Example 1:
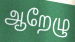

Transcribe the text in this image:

ஆறேழு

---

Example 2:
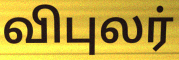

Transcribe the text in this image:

விபுலர்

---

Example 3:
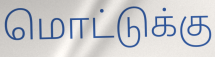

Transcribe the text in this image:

மொட்டுக்கு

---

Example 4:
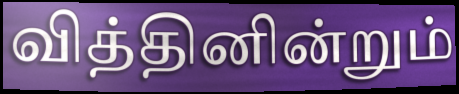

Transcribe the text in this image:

வித்தினின்றும்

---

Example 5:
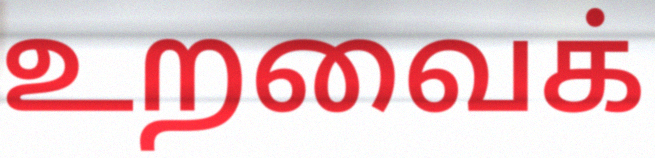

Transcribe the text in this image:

உறவைக்